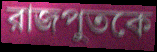
রাজপুতকে